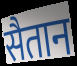
सैतान